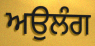
ਅਉਲੰਗ